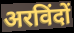
अरविंदों